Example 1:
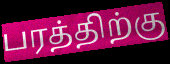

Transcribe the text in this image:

பரத்திற்கு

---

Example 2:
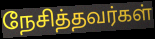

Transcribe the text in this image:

நேசித்தவர்கள்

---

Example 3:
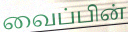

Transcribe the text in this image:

வைப்பின்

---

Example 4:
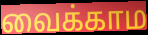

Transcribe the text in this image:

வைக்காம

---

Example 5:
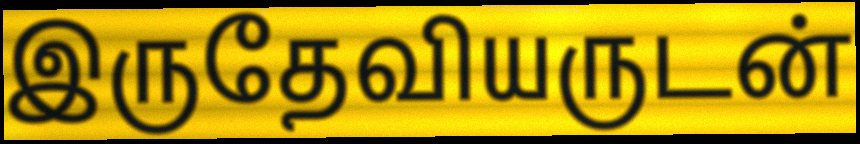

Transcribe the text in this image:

இருதேவியருடன்